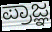
ಪ್ರಾಜ್ಞ